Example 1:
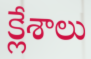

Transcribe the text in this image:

క్లేశాలు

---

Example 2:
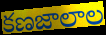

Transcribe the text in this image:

కణజాలాల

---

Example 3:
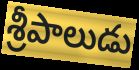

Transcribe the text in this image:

శ్రీపాలుడు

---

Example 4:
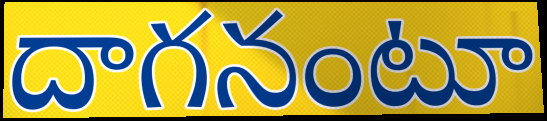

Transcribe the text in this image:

దాగనంటూ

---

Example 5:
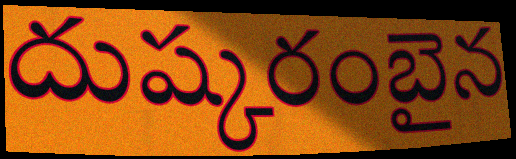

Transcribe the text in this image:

దుష్కరంబైన